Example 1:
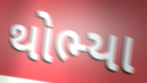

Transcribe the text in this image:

થોભ્યા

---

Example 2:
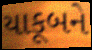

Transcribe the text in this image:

યાકૂબને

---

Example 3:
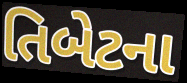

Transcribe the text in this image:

તિબેટના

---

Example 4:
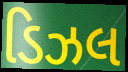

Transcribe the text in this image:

ડિઝલ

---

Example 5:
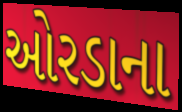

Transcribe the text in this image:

ઓરડાના